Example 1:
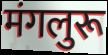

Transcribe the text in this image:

मंगलुरू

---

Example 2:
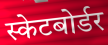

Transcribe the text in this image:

स्केटबोर्डर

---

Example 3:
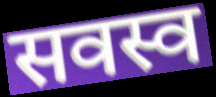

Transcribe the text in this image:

सवस्व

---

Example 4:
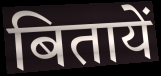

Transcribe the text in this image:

बितायें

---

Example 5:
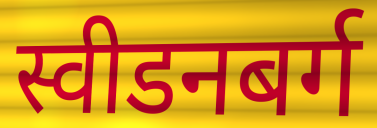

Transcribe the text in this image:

स्वीडनबर्ग